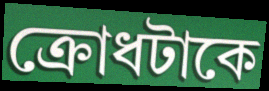
ক্রোধটাকে